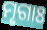
ମୃଗାଃ